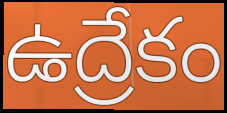
ఉద్రేకం